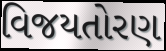
વિજયતોરણ